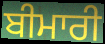
ਬੀਮਾਰੀ